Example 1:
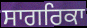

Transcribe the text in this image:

ਸਾਗਰਿਕਾ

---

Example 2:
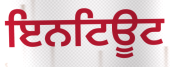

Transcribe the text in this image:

ਇਨਟਿਊਟ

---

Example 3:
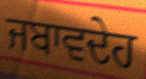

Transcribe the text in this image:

ਜਬਾਵਦੇਹ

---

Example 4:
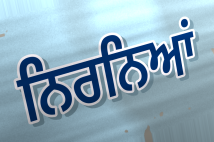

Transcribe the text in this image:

ਨਿਰਨਿਆਂ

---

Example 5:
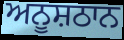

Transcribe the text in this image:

ਅਨੂਸ਼ਠਾਨ